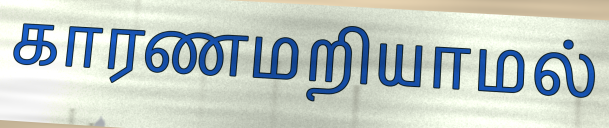
காரணமறியாமல்